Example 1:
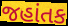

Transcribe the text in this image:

જહાંતક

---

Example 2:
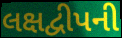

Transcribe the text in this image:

લક્ષદ્વીપની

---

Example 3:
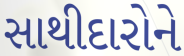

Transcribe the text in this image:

સાથીદારોને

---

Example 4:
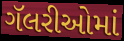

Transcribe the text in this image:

ગૅલરીઓમાં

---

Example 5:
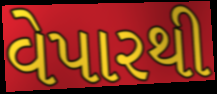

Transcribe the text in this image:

વેપારથી